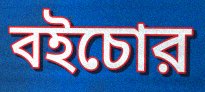
বইচোর